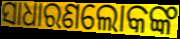
ସାଧାରଣଲୋକଙ୍କ